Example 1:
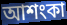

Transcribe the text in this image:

আশংকা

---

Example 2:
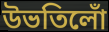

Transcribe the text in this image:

উভতিলোঁ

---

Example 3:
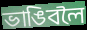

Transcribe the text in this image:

ভাঙিবলৈ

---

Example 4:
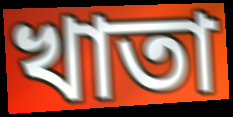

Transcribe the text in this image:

খাতা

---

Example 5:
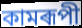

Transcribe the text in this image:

কামৰূপী